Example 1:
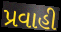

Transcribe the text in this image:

પ્રવાહી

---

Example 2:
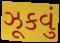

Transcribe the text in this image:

ઝૂકવું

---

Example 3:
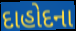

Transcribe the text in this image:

દાહોદના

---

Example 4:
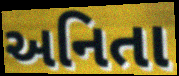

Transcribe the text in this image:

અનિતા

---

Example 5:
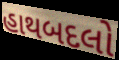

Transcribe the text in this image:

હાથબદલો